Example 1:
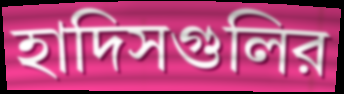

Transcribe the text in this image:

হাদিসগুলির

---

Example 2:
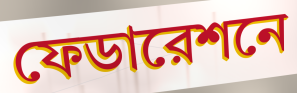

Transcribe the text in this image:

ফেডারেশনে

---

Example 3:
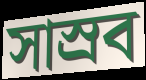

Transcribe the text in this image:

সাস্রব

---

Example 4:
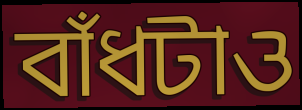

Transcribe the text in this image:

বাঁধটাও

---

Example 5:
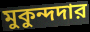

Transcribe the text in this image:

মুকুন্দদার